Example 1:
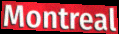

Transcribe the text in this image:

Montreal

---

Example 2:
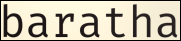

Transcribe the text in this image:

baratha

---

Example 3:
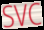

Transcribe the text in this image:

SVC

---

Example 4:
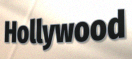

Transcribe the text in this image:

Hollywood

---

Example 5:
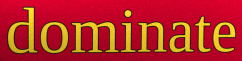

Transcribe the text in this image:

dominate